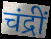
चंद्रीं